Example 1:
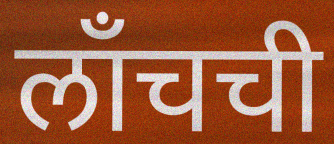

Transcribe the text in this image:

लाँचची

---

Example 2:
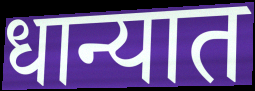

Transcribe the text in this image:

धान्यात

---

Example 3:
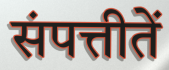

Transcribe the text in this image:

संपत्तीतें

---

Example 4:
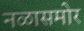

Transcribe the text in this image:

नळासमोर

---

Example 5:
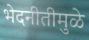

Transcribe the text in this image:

भेदनीतीमुळे